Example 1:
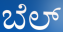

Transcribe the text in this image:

ಬೆಲ್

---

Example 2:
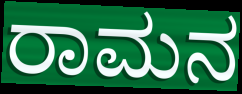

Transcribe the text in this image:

ರಾಮನ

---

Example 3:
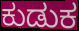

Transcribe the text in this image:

ಕುಡುಕ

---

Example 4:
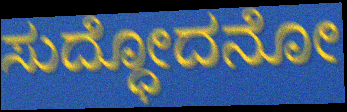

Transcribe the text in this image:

ಸುದ್ಧೋದನೋ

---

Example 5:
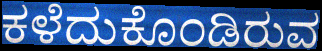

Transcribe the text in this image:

ಕಳೆದುಕೊಂಡಿರುವ